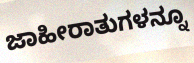
ಜಾಹೀರಾತುಗಳನ್ನೂ